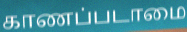
காணப்படாமை